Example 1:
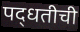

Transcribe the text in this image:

पद्धतीची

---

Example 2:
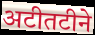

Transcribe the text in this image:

अटीतटीने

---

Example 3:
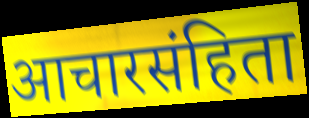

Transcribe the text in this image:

आचारसंहिता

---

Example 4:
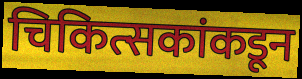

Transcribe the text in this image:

चिकित्सकांकडून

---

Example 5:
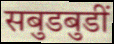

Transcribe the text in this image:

सबुडबुडीं